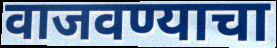
वाजवण्याचा